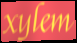
xylem